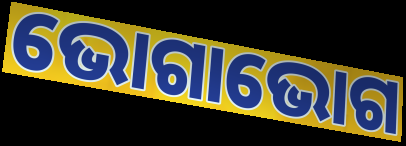
ଭୋଗାଭୋଗ